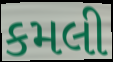
કમલી